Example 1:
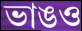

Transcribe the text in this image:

ভাঙও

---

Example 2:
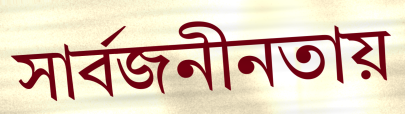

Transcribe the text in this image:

সার্বজনীনতায়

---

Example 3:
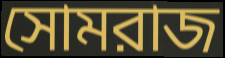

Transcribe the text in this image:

সোমরাজ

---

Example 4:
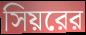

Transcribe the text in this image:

সিয়রের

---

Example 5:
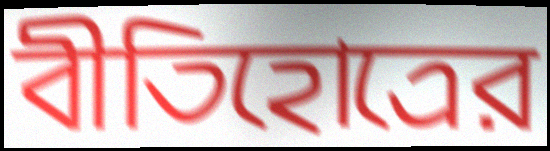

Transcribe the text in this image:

বীতিহোত্রের